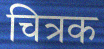
चित्रक